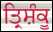
ਤ੍ਰਿਸ਼ੰਕੂ